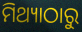
ମିଥ୍ୟାଠାରୁ